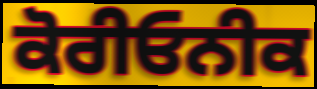
ਕੋਰੀਓਨੀਕ